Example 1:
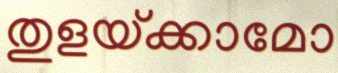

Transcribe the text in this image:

തുളയ്‌ക്കാമോ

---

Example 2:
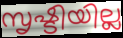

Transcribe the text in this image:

സൃഷ്ടിയില്ല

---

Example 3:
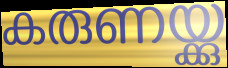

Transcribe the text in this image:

കരുണയ്ക്കു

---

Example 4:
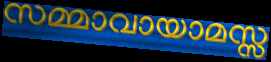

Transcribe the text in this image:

സമ്മാവായാമസ്സ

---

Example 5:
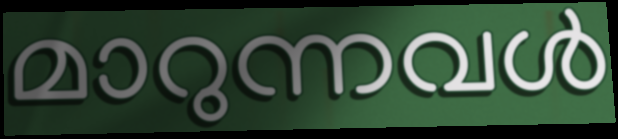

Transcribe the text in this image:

മാറുന്നവൾ